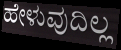
ಹೇಳುವುದಿಲ್ಲ